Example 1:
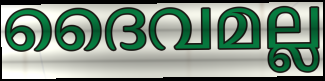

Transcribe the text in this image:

ദൈവമല്ല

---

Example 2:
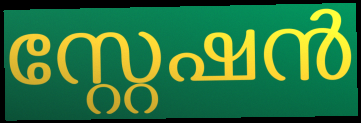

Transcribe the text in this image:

സ്റ്റേഷൻ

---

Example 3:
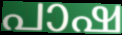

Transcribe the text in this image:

പാഷ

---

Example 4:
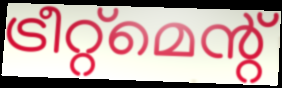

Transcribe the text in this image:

ട്രീറ്റ്മെന്റ്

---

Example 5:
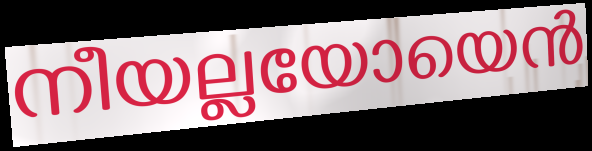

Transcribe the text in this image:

നീയല്ലയോയെൻ